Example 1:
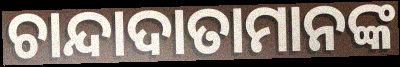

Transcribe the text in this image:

ଚାନ୍ଦାଦାତାମାନଙ୍କ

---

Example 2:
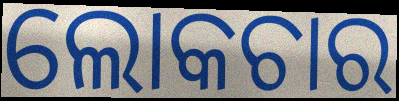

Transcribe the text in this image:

ଲୋକଚାର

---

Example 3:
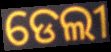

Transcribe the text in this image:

ଡେଲୀ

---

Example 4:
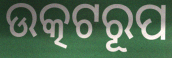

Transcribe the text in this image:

ଉତ୍କଟରୂପ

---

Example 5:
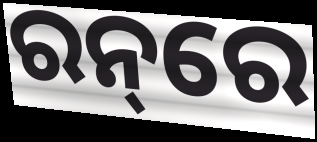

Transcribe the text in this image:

ରନ୍‌ରେ